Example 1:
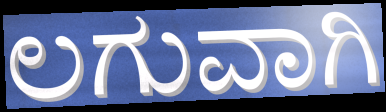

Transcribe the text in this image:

ಲಗುವಾಗಿ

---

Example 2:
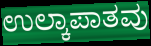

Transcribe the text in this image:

ಉಲ್ಕಾಪಾತವು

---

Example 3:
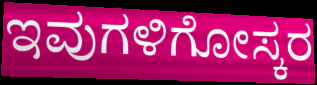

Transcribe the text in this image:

ಇವುಗಳಿಗೋಸ್ಕರ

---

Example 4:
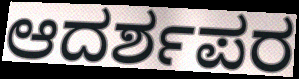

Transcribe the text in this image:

ಆದರ್ಶಪರ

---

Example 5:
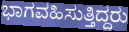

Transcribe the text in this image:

ಭಾಗವಹಿಸುತ್ತಿದ್ದರು